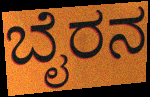
ಬೈರನ